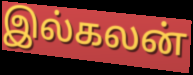
இல்கலன்